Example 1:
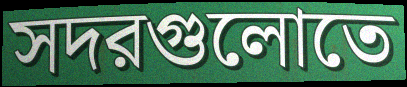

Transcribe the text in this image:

সদরগুলোতে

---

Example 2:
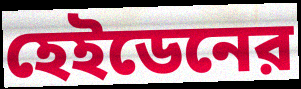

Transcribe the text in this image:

হেইডেনের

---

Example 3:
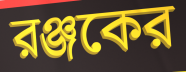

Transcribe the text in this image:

রঞ্জকের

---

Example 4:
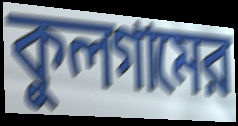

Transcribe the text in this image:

কুলগামের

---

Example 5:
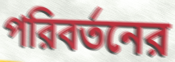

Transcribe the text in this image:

পরিবর্তনের